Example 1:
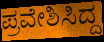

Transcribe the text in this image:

ಪ್ರವೇಶಿಸಿದ್ದ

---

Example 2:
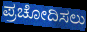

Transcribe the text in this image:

ಪ್ರಚೋದಿಸಲು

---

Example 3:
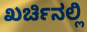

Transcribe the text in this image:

ಖರ್ಚಿನಲ್ಲಿ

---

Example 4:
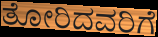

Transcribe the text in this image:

ತೋರಿದವರಿಗೆ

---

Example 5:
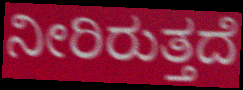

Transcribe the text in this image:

ನೀರಿರುತ್ತದೆ